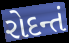
રોદન્તં